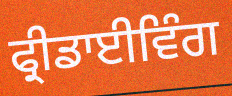
ਫ੍ਰੀਡਾਈਵਿੰਗ